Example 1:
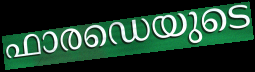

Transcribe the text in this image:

ഫാരഡെയുടെ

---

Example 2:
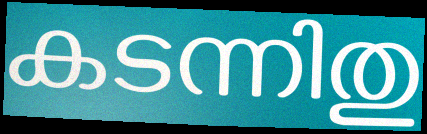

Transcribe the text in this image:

കടന്നിതു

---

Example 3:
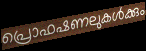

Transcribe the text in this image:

പ്രൊഫഷണലുകൾക്കും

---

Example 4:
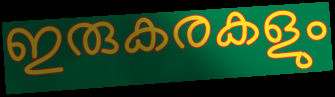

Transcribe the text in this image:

ഇരുകരകളും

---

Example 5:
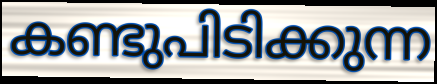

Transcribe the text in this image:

കണ്ടുപിടിക്കുന്ന